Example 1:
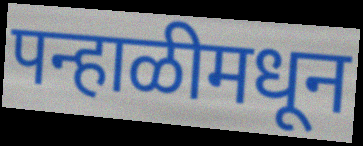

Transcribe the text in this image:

पन्हाळीमधून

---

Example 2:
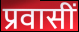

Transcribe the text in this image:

प्रवासीं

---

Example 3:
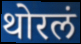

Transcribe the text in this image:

थोरलं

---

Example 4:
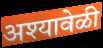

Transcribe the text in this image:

अश्यावेळी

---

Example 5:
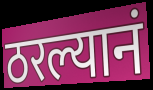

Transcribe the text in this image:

ठरल्यानं